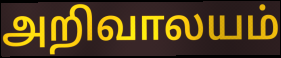
அறிவாலயம்